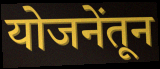
योजनेंतून